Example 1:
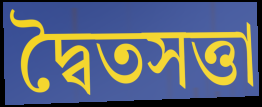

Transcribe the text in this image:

দ্বৈতসত্তা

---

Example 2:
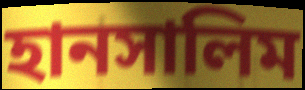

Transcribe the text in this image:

হানসালিম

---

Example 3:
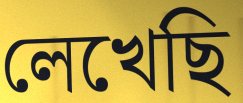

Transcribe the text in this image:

লেখেছি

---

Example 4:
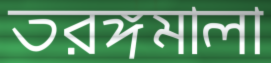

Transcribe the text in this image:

তরঙ্গমালা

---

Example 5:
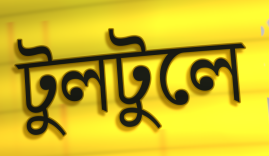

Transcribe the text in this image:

টুলটুলে